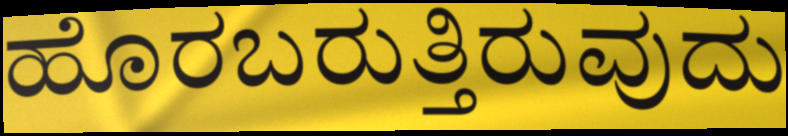
ಹೊರಬರುತ್ತಿರುವುದು